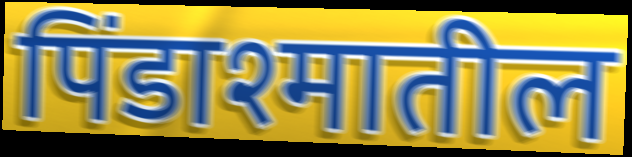
पिंडाश्मातील